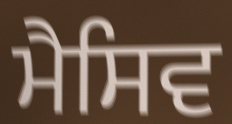
ਮੈਸਿਵ